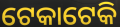
ଟେକାଟେକି